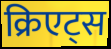
क्रिएट्स